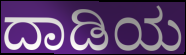
ದಾಡಿಯ